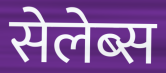
सेलेब्‍स